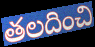
తలదించి